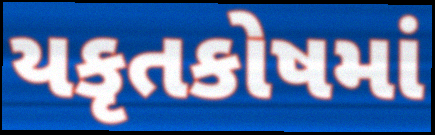
યકૃતકોષમાં